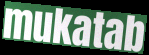
mukatab